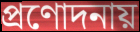
প্রণোদনায়